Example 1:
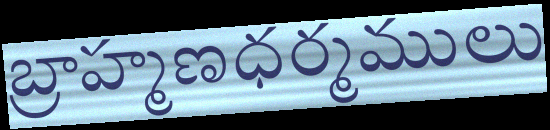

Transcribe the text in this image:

బ్రాహ్మణధర్మములు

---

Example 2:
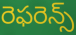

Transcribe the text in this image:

రెఫరెన్స్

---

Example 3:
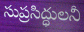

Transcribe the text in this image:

సుప్రసిద్ధులనీ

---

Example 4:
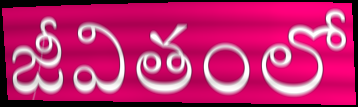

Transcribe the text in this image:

జీవితంలో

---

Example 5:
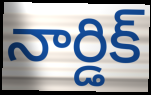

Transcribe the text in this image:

నార్డిక్